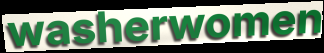
washerwomen